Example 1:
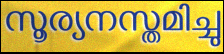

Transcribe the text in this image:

സൂര്യനസ്തമിച്ചു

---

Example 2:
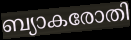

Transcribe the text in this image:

ബ്യാകരോതി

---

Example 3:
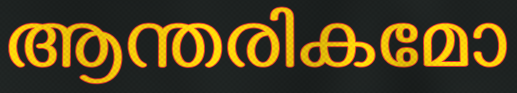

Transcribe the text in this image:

ആന്തരികമോ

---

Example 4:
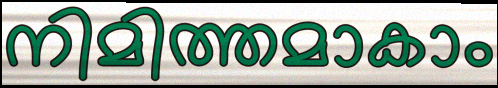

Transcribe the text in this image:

നിമിത്തമാകാം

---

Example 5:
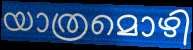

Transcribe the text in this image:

യാത്രമൊഴി